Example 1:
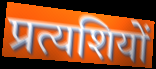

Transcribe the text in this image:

प्रत्यशियों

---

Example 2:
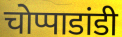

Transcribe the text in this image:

चोप्पाडांडी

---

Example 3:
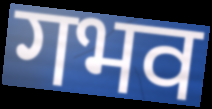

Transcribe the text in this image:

गभव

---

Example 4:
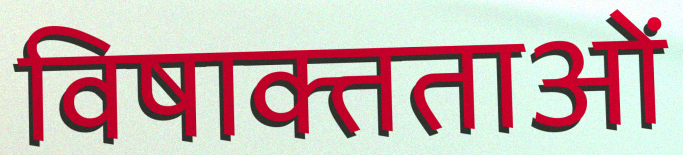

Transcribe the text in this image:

विषाक्तताओं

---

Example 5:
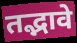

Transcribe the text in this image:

तद्भावे